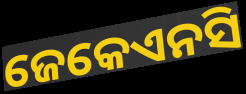
ଜେକେଏନସି